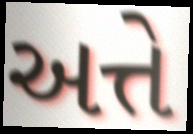
અત્તે